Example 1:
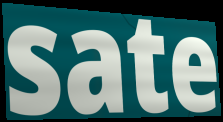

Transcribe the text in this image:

sate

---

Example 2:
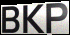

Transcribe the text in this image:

BKP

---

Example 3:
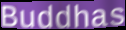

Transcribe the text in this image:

Buddhas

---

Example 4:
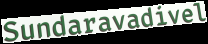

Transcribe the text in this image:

Sundaravadivel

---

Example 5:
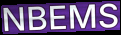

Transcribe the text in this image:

NBEMS